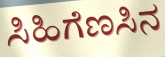
ಸಿಹಿಗೆಣಸಿನ